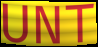
UNT